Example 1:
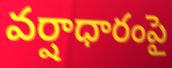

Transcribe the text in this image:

వర్షాధారంపై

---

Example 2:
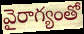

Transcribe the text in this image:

వైరాగ్యంతో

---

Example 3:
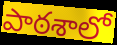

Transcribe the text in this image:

పాఠశాలో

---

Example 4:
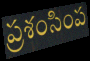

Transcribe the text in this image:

ప్రశంసింప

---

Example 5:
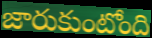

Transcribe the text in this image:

జారుకుంటోంది